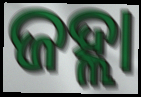
ଜହ୍ଲା